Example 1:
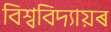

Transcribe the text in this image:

বিশ্ববিদ্যায়ৰ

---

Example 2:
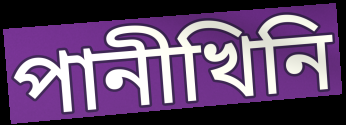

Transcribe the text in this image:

পানীখিনি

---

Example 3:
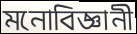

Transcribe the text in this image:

মনোবিজ্ঞানী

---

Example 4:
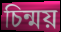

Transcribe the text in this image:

চিন্ময়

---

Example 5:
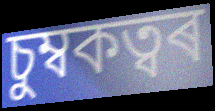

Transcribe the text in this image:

চুম্বকত্বৰ